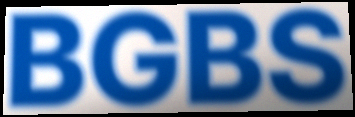
BGBS